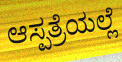
ಆಸ್ಪತ್ರೆಯಲ್ಲೆ